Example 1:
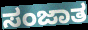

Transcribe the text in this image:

ಸಂಜಾತ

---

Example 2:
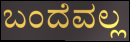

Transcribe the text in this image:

ಬಂದೆವಲ್ಲ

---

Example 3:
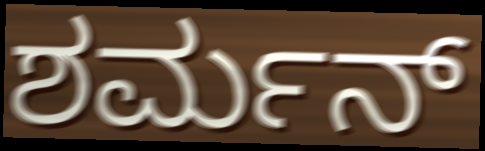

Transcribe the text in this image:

ಶರ್ಮನ್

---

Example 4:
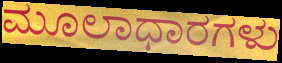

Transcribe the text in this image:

ಮೂಲಾಧಾರಗಳು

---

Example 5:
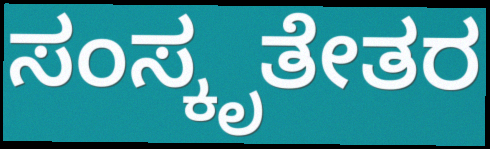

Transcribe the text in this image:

ಸಂಸ್ಕೃತೇತರ